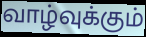
வாழ்வுக்கும்